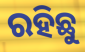
ରହିଛୁ